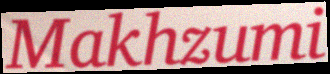
Makhzumi